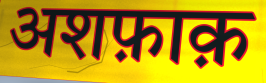
अशफ़ाक़